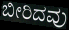
ಬೀರಿದವು